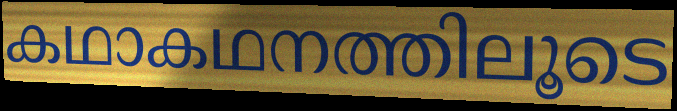
കഥാകഥനത്തിലൂടെ